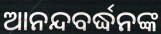
ଆନନ୍ଦବର୍ଦ୍ଧନଙ୍କ